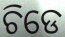
ଚିଡେ